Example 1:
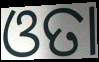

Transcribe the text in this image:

ଓତା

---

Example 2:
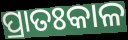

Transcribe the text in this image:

ପ୍ରାତଃକାଳ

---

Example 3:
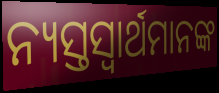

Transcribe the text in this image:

ନ୍ୟସ୍ତସ୍ଵାର୍ଥମାନଙ୍କ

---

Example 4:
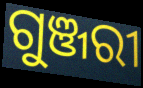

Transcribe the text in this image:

ଗୁଞ୍ଜରୀ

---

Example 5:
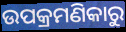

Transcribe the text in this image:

ଉପକ୍ରମଣିକାରୁ